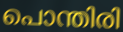
പൊന്തിരി